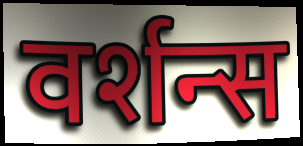
वर्शन्स